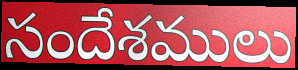
సందేశములు